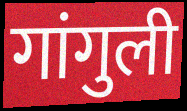
गांगुली